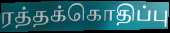
ரத்தக்கொதிப்பு